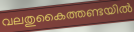
വലതുകൈത്തണ്ടയിൽ